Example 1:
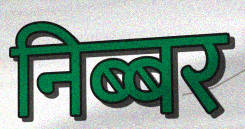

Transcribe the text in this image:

निब्बर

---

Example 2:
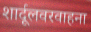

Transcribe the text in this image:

शार्दूलवरवाहना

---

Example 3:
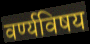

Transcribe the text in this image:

वर्ण्यविषय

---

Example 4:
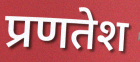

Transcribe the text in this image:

प्रणतेश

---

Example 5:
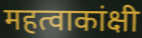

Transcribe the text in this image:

महत्वाकांक्षी